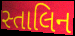
સ્તાલિન